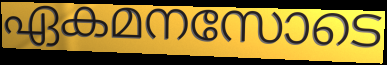
ഏകമനസോടെ